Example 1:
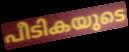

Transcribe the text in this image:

പീടികയുടെ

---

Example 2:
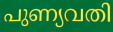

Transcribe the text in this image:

പുണ്യവതി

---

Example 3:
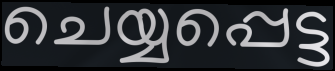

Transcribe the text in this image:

ചെയ്യപ്പെട്ട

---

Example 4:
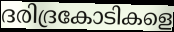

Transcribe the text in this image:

ദരിദ്രകോടികളെ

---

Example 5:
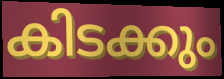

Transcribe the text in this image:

കിടക്കും